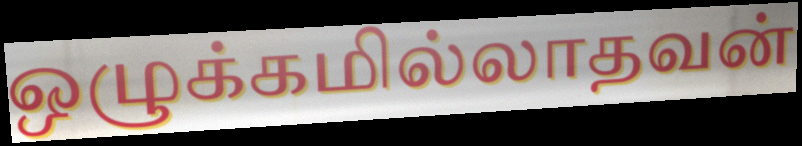
ஒழுக்கமில்லாதவன்